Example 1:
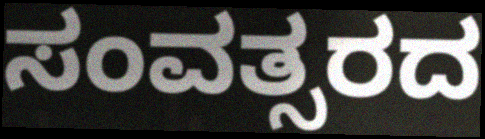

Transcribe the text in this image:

ಸಂವತ್ಸರದ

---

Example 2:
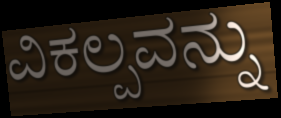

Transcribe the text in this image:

ವಿಕಲ್ಪವನ್ನು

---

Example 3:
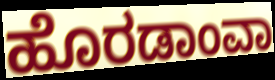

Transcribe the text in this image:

ಹೊರಡಾಂವಾ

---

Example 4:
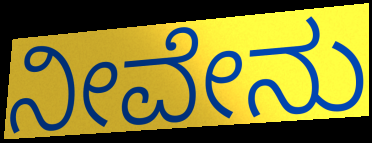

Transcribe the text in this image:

ನೀವೇನು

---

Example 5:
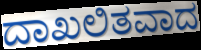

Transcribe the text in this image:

ದಾಖಲಿತವಾದ